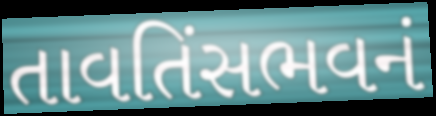
તાવતિંસભવનં